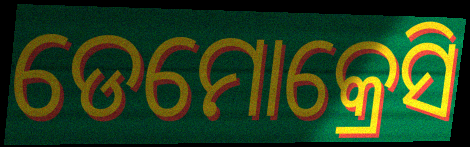
ଡେମୋକ୍ରେସି